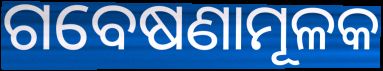
ଗବେଷଣାମୂଳକ